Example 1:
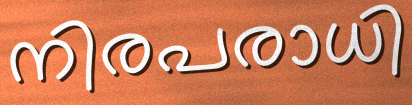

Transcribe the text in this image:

നിരപരാധി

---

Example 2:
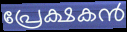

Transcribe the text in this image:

പ്രേക്ഷകൻ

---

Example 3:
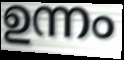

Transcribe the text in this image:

ഉന്നം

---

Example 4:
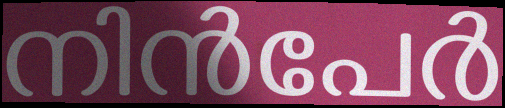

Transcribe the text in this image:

നിൻപേർ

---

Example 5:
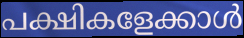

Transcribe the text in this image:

പക്ഷികളേക്കാൾ